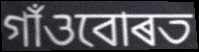
গাঁওবোৰত